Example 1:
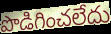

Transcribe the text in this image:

పొడిగించలేదు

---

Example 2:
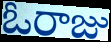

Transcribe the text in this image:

ఓరాజు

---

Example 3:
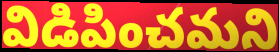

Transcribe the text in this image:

విడిపించమని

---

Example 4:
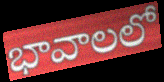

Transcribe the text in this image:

భావాలలో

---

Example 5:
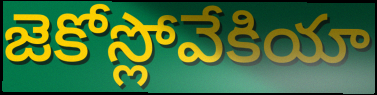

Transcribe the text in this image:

జెకోస్లోవేకియా